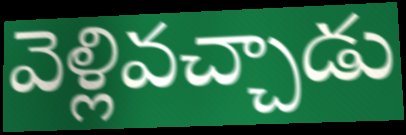
వెళ్లివచ్చాడు